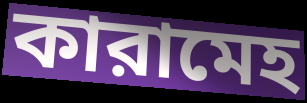
কারামেহ